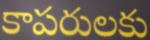
కాపరులకు